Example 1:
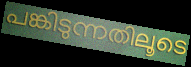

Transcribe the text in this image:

പങ്കിടുന്നതിലൂടെ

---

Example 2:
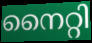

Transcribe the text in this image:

നൈറ്റി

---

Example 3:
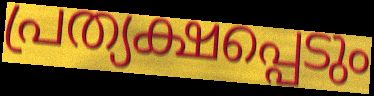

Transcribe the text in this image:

പ്രത്യക്ഷപ്പെടും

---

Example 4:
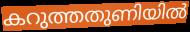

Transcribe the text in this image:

കറുത്തതുണിയിൽ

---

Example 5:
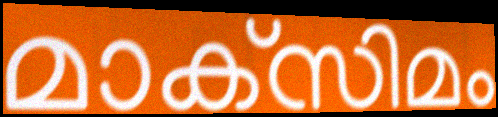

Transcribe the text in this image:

മാക്‌സിമം